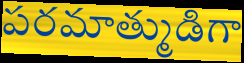
పరమాత్ముడిగా